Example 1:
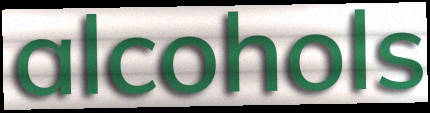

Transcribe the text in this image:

alcohols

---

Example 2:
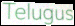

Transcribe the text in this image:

Telugus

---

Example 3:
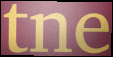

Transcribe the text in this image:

tne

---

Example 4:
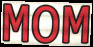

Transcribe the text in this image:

MOM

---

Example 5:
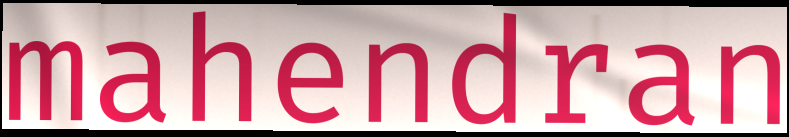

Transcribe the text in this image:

mahendran